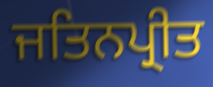
ਜਤਿਨਪ੍ਰੀਤ